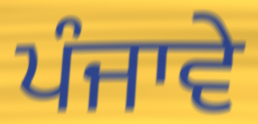
ਪੰਜਾਵੇ